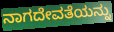
ನಾಗದೇವತೆಯನ್ನು